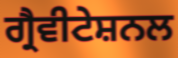
ਗ੍ਰੈਵੀਟੇਸ਼ਨਲ